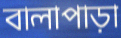
বালাপাড়া